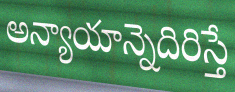
అన్యాయాన్నెదిరిస్తే